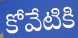
కోవేటికి